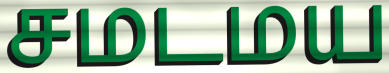
சமடமய